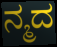
ನ್ಮದ